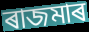
ৰাজমাৰ